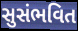
સુસંભવિત